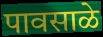
पावसाळे